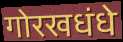
गोरखधंधे